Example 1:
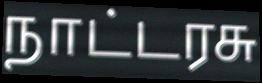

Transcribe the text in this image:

நாட்டரசு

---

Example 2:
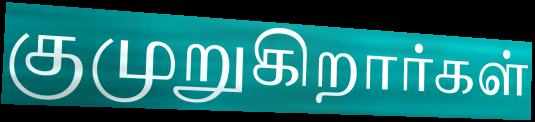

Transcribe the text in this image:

குமுறுகிறார்கள்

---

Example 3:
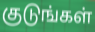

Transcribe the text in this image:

குடுங்கள்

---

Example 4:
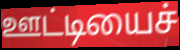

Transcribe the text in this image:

ஊட்டியைச்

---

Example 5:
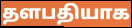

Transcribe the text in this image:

தளபதியாக